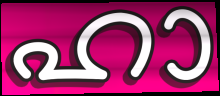
ഹാ